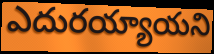
ఎదురయ్యాయని